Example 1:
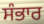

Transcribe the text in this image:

ਸੰਭਾਰ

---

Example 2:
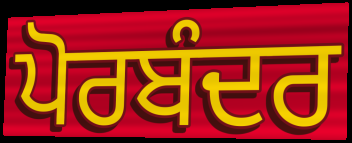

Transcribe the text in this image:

ਪੋਰਬੰਦਰ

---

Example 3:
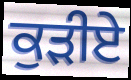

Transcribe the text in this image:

ਕੁੜੀਏ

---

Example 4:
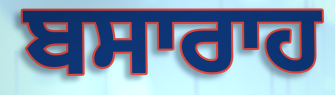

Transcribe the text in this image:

ਬਸਾਰਾਹ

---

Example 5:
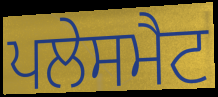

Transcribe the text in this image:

ਪਲੇਸਮੈਟ